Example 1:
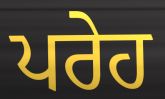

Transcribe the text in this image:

ਪਰੇਹ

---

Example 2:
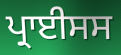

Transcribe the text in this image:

ਪ੍ਰਾਈਸਸ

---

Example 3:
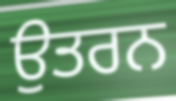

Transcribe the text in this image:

ਉਤਰਨ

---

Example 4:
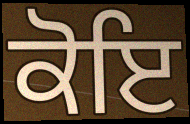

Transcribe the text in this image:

ਕੋਇ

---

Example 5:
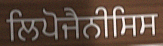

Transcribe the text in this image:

ਲਿਪੋਜੈਨੀਸਿਸ